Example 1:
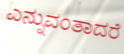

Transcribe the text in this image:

ಎನ್ನುವಂತಾದರೆ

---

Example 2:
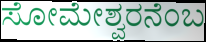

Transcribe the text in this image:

ಸೋಮೇಶ್ವರನೆಂಬ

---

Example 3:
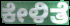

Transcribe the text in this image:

ಕೇಳಿತೆ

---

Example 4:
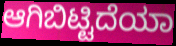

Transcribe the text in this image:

ಆಗಿಬಿಟ್ಟಿದೆಯಾ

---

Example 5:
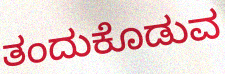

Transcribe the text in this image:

ತಂದುಕೊಡುವ